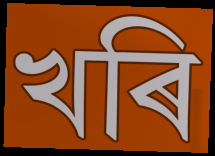
খৰি